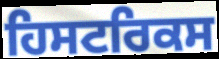
ਹਿਸਟਰਿਕਸ